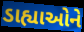
ડાહ્યાઓને